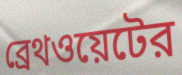
ব্রেথওয়েটের